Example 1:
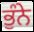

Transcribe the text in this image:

ਭੁੰਨੇ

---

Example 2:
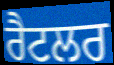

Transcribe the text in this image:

ਰੈਟਲਰ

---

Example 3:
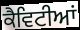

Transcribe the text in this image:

ਕੈਵਿਟੀਆਂ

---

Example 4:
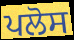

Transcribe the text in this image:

ਪਲੋਸ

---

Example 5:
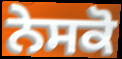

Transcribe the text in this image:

ਨੇਸਕੋ